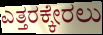
ಎತ್ತರಕ್ಕೇರಲು